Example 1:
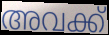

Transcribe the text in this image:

അവക്ക്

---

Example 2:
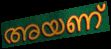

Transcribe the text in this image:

അയണ്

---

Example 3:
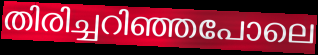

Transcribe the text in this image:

തിരിച്ചറിഞ്ഞപോലെ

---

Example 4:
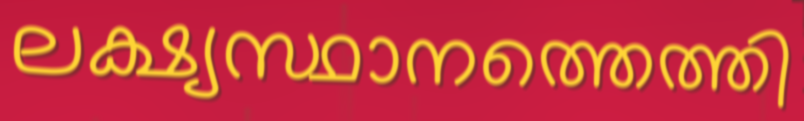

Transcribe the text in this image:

ലക്ഷ്യസ്ഥാനത്തെത്തി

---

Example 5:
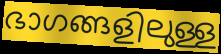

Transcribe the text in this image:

ഭാഗങ്ങളിലുള്ള